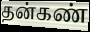
தன்கண்